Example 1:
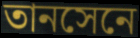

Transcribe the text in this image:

তানসেনে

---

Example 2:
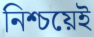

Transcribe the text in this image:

নিশ্চয়েই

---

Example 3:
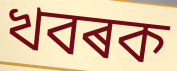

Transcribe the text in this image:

খবৰক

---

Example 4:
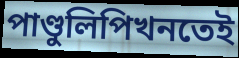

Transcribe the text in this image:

পাণ্ডুলিপিখনতেই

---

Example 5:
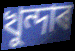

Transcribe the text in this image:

খুন্দাৰ